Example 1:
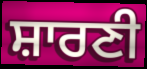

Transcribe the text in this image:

ਸ਼ਾਰਣੀ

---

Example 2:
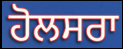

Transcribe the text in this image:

ਹੋਲਸਰਾ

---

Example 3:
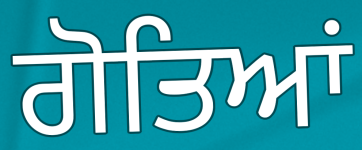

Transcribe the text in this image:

ਗੋਤਿਆਂ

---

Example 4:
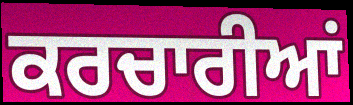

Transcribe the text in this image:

ਕਰਚਾਰੀਆਂ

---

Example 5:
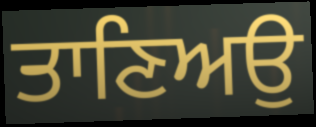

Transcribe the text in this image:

ਤਾਣਿਅਉ